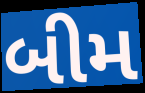
બીમ